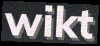
wikt